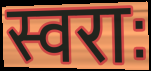
स्वराः